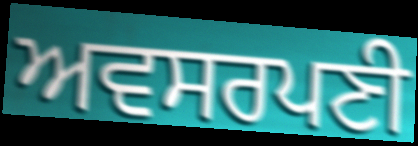
ਅਵਸਰਪਣੀ